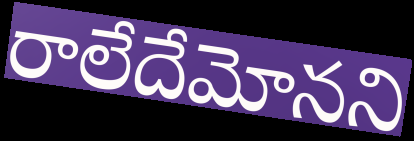
రాలేదేమోనని